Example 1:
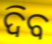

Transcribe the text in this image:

ଦିବ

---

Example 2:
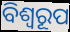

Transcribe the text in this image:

ବିଶ୍ବରୂପ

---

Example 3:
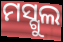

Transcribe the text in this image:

ମସ୍ଗୁଲ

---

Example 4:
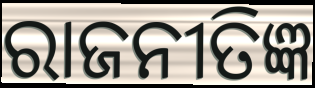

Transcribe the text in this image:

ରାଜନୀତିଜ୍ଞ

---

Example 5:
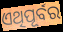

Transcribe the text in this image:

ଏଥିପୂର୍ବର